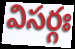
విసర్గః